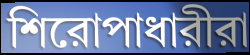
শিরোপাধারীরা